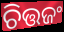
ଚିତ୍ତଜଂ